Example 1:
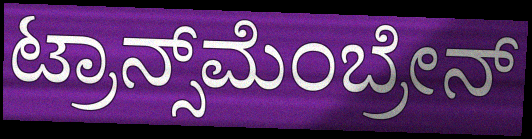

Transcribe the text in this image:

ಟ್ರಾನ್ಸ್‌ಮೆಂಬ್ರೇನ್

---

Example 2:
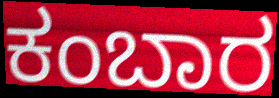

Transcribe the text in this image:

ಕಂಬಾರ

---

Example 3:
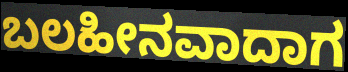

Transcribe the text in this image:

ಬಲಹೀನವಾದಾಗ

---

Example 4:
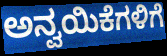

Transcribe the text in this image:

ಅನ್ವಯಿಕೆಗಳಿಗೆ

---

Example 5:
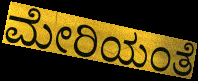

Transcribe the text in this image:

ಮೇರಿಯಂತೆ